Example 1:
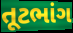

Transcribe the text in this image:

તૂટભાંગ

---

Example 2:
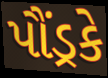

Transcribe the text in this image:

પૌંડ્રકે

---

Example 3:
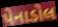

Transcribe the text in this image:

પેનાડોલ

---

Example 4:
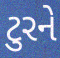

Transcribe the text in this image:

ટુરને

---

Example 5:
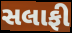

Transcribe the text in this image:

સલાફી